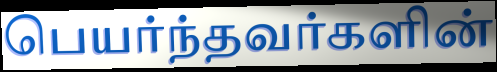
பெயர்ந்தவர்களின்